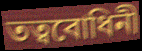
তত্ববোধিনী